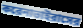
করেনাভাইরাসের